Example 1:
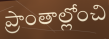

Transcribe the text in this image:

ప్రాంతాల్లోంచి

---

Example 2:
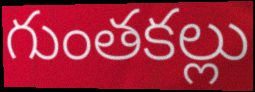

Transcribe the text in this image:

గుంతకల్లు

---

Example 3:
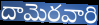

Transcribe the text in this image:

దామెరవారి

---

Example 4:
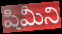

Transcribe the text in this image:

షిమీని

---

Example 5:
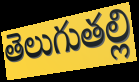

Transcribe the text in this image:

తెలుగుతల్లి